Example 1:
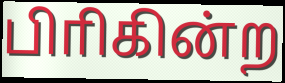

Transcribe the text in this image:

பிரிகின்ற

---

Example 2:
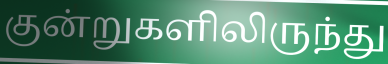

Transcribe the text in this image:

குன்றுகளிலிருந்து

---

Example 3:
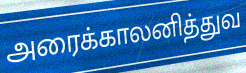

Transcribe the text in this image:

அரைக்காலனித்துவ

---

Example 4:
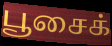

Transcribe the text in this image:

பூசைக்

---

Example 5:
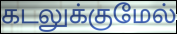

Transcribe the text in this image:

கடலுக்குமேல்